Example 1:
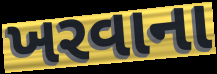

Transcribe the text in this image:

ખરવાના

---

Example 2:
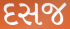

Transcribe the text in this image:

દસજ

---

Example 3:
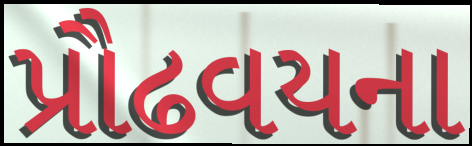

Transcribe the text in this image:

પ્રૌઢવયના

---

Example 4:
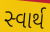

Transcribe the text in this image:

સ્વાર્થ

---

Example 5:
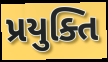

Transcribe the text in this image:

પ્રયુક્તિ